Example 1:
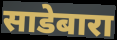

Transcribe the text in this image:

साडेबारा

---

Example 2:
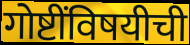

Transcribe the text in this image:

गोष्टींविषयीची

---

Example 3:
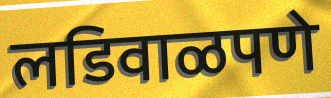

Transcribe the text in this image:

लडिवाळपणे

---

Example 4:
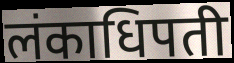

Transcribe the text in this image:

लंकाधिपती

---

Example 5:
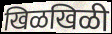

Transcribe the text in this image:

खिळखिळी